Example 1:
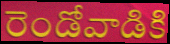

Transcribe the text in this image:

రెండోవాడికి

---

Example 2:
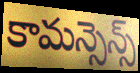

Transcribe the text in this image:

కామన్సెన్స్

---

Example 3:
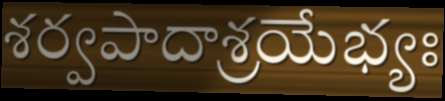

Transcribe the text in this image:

శర్వపాదాశ్రయేభ్యః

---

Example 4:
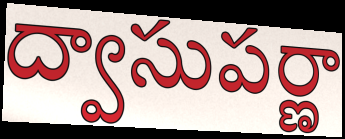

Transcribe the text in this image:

ద్వాసుపర్ణా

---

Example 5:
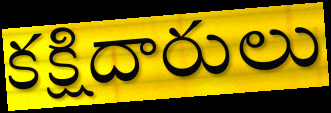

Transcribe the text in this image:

కక్షిదారులు